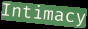
Intimacy